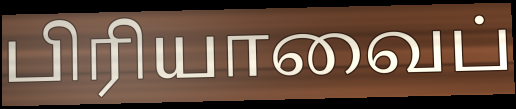
பிரியாவைப்